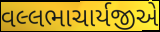
વલ્લભાચાર્યજીએ